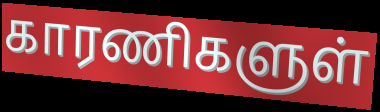
காரணிகளுள்